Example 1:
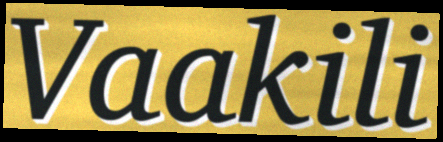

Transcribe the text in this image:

Vaakili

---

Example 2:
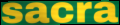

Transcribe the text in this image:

sacra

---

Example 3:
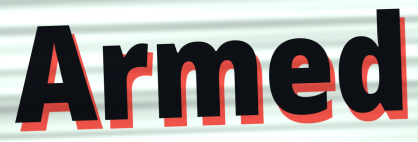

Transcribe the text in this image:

Armed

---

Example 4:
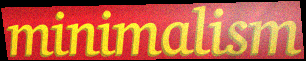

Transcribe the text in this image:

minimalism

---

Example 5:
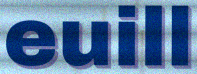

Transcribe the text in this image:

euill